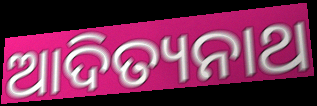
ଆଦିତ୍ୟନାଥ